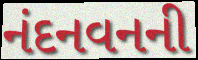
નંદનવનની